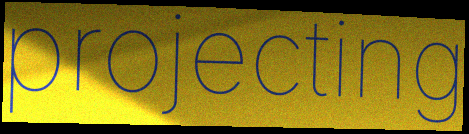
projecting